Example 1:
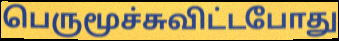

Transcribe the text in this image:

பெருமூச்சுவிட்டபோது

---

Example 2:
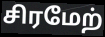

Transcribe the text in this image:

சிரமேற்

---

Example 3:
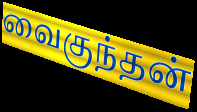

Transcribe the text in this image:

வைகுந்தன்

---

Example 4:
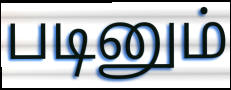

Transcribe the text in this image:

படினும்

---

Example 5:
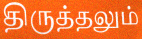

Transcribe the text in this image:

திருத்தலும்